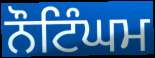
ਨੌਟਿੰਘਮ